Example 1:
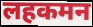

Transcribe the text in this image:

लहकमन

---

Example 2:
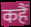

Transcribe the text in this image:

कहैं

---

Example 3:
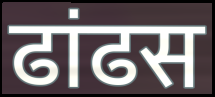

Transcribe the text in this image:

ढांढस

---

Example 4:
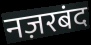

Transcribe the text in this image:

नज़रबंद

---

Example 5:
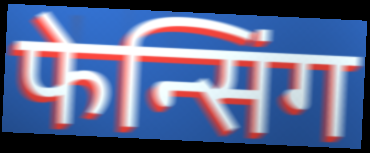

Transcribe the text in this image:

फेन्सिंग